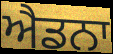
ਐਡਨਾ